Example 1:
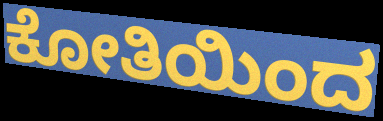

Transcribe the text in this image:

ಕೋತಿಯಿಂದ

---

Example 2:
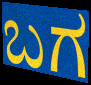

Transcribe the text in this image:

ಬಗ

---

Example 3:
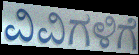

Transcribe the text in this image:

ವಿವಿಗಳಿಗೆ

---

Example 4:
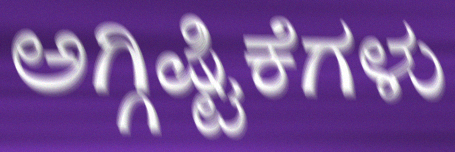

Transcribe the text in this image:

ಅಗ್ಗಿಷ್ಟಿಕೆಗಳು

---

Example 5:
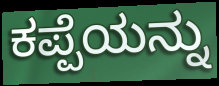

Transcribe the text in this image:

ಕಪ್ಪೆಯನ್ನು